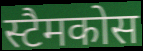
स्टैमकोस